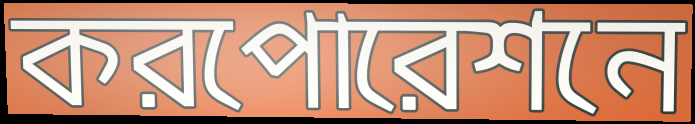
করপোরেশনে